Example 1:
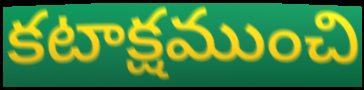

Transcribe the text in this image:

కటాక్షముంచి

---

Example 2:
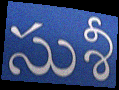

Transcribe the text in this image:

సుశీ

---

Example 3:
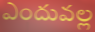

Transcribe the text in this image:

ఎందువల్ల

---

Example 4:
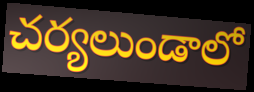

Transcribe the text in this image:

చర్యలుండాలో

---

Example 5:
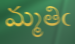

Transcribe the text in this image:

మ్మతిఁ